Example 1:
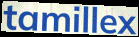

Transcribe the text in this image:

tamillex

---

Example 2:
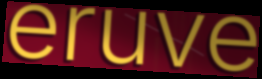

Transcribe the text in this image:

eruve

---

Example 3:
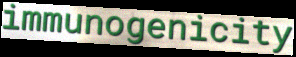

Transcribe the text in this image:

immunogenicity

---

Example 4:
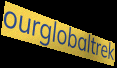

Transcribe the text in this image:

ourglobaltrek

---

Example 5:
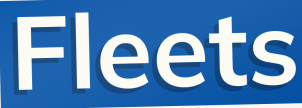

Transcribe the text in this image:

Fleets